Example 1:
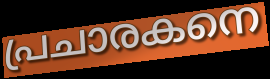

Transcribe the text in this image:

പ്രചാരകനെ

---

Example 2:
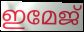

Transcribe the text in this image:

ഇമേജ്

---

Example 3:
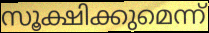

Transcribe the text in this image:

സൂക്ഷിക്കുമെന്ന്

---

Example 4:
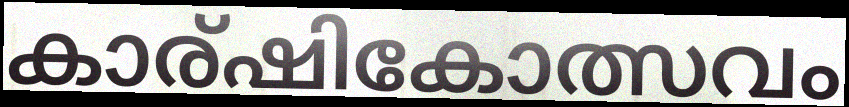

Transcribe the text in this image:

കാര്ഷികോത്സവം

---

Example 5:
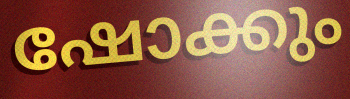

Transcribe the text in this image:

ഷോക്കും